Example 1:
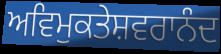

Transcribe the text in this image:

ਅਵਿਮੁਕਤੇਸ਼ਵਰਾਨੰਦ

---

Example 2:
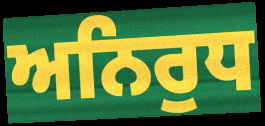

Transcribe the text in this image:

ਅਨਿਰੁਧ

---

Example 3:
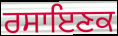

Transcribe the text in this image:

ਰਸਾਇਣਕ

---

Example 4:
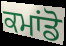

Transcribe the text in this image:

ਕਮਾਂਡੋ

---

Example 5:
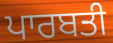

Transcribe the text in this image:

ਪਾਰਬਤੀ